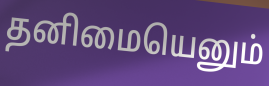
தனிமையெனும்